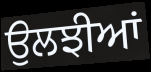
ਉਲਝੀਆਂ